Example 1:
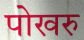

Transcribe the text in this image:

पोखरु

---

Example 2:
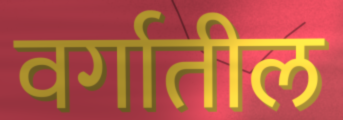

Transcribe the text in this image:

वर्गातील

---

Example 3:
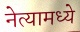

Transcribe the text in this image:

नेत्यामध्ये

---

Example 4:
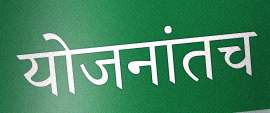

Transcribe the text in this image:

योजनांतच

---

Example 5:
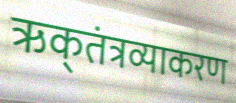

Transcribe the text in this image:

ऋक्‌तंत्रव्याकरण